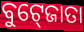
ବୁଟ୍‍ଜୋତା